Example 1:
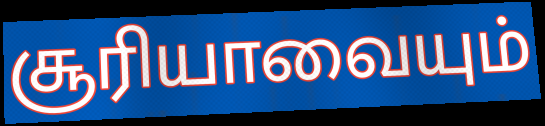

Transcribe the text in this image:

சூரியாவையும்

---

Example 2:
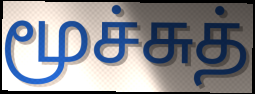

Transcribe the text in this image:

மூச்சுத்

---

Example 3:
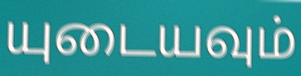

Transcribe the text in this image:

யுடையவும்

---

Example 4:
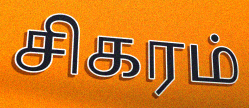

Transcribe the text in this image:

சிகரம்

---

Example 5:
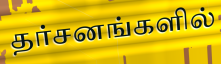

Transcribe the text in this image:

தர்சனங்களில்